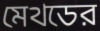
মেথডের